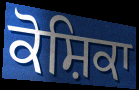
ਕੋਸ਼ਿਕਾ